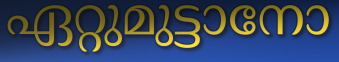
ഏറ്റുമുട്ടാനോ